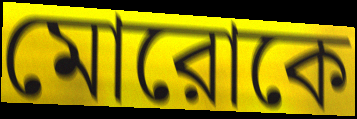
মোরোকে